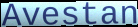
Avestan